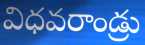
విధవరాండ్రు